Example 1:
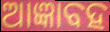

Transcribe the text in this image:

ଆଜ୍ଞାବହ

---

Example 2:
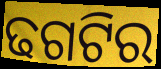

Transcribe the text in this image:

ଢଗଟିର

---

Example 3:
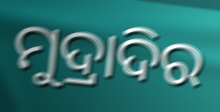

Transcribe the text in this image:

ମୁଦ୍ରାଦିର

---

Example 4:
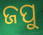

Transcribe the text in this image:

ଜପୁ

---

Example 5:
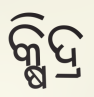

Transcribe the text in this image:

କ୍ଷିଦ୍ର